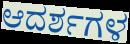
ಆದರ್ಶಗಳ